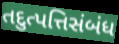
તદુત્પત્તિસંબંધ